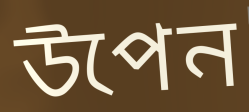
উপেন